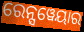
ରେନ୍ସୱେୟାର